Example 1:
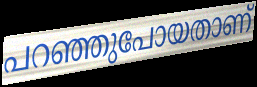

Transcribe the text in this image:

പറഞ്ഞുപോയതാണ്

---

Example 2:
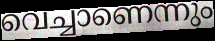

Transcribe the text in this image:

വെച്ചാണെന്നും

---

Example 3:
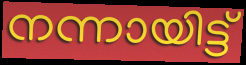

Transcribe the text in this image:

നന്നായിട്ട്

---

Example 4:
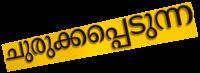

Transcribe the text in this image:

ചുരുക്കപ്പെടുന്ന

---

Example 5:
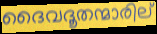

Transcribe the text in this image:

ദൈവദൂതന്മാരില്